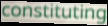
constituting